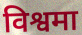
विश्वमा